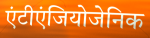
एंटीएंजियोजेनिक